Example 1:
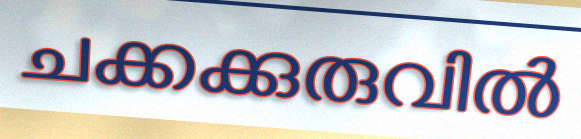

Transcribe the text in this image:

ചക്കക്കുരുവിൽ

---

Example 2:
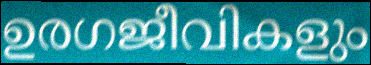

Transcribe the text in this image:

ഉരഗജീവികളും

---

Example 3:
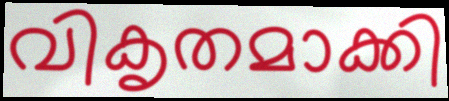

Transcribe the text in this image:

വികൃതമാക്കി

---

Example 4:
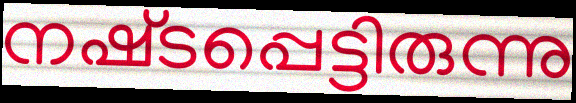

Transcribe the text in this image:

നഷ്‌ടപ്പെട്ടിരുന്നു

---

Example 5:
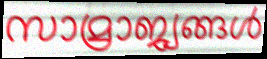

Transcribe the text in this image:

സാമ്രാജ്യങ്ങൾ